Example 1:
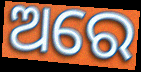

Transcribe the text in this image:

ଅରେ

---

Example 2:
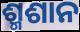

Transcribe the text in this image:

ଶ୍ମଶାନ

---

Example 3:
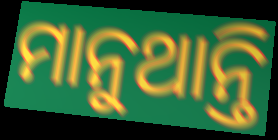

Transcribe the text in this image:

ମାନୁଥାନ୍ତି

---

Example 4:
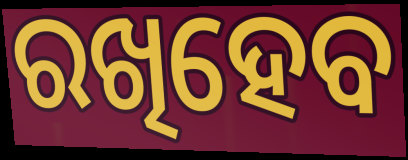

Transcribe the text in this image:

ରଖିହେବ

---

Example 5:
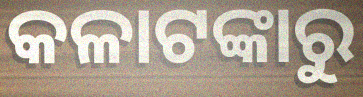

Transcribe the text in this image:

କଳାଟଙ୍କାରୁ